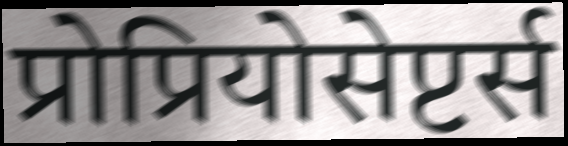
प्रोप्रियोसेप्टर्स